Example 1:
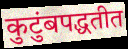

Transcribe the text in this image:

कुटुंबपद्धतीत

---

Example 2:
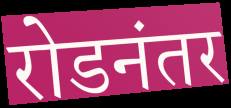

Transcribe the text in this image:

रोडनंतर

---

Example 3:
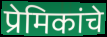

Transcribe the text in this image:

प्रेमिकांचे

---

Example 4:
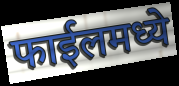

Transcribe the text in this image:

फाईलमध्ये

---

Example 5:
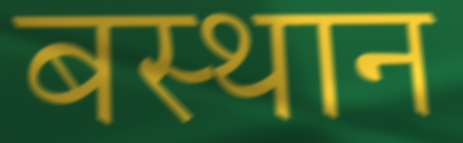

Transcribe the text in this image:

बस्थान